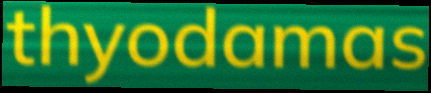
thyodamas